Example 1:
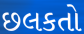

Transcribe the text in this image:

છલકતો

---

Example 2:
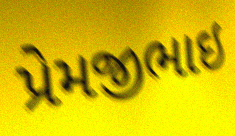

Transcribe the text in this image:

પ્રેમજીભાઇ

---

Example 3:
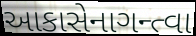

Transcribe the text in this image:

આકાસેનાગન્ત્વા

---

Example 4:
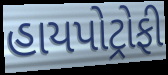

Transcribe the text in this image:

હાયપોટ્રોફી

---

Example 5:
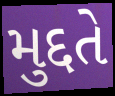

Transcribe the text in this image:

મુદ્દતે